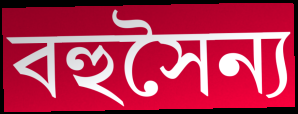
বহুসৈন্য